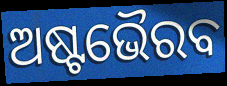
ଅଷ୍ଟଭୈରବ